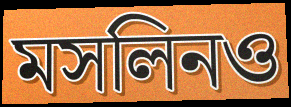
মসলিনও